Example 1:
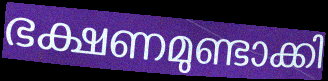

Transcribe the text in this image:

ഭക്ഷണമുണ്ടാക്കി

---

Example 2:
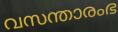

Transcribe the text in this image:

വസന്താരംഭ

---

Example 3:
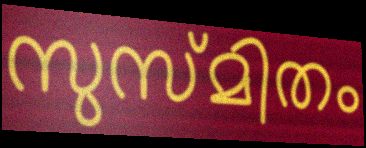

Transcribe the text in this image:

സുസ്മിതം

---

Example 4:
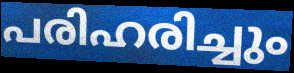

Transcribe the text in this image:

പരിഹരിച്ചും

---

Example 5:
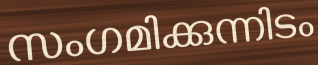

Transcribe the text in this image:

സംഗമിക്കുന്നിടം